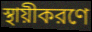
স্থায়ীকরণে